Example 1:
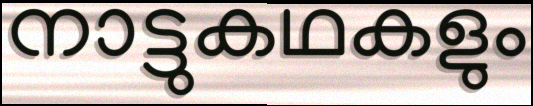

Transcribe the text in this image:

നാട്ടുകഥകളും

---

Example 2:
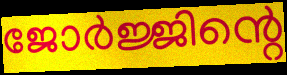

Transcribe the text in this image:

ജോർജ്ജിന്റെ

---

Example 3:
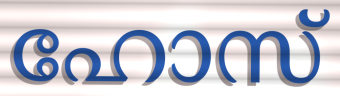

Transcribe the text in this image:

ഹോസ്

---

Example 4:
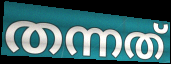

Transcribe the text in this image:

തന്നത്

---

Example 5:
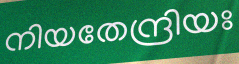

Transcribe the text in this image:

നിയതേന്ദ്രിയഃ